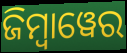
ଜିମ୍ୱାୱେର